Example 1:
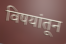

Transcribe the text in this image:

विषयांतून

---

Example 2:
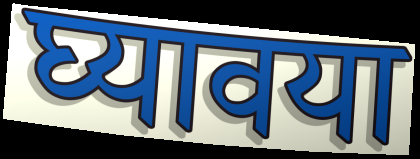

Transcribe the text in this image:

घ्यावया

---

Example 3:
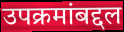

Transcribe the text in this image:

उपक्रमांबद्दल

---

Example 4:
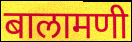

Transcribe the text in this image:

बालामणी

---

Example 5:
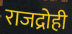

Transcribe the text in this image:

राजद्रोही